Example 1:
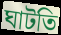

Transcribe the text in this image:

ঘাটতি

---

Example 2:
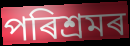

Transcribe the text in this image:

পৰিশ্ৰমৰ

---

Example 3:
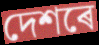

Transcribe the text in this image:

দেশৰে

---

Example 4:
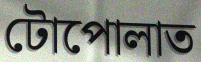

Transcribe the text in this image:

টোপোলাত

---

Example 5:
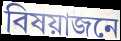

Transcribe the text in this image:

বিষয়াজনে